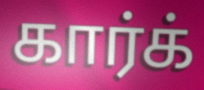
கார்க்